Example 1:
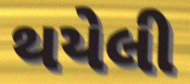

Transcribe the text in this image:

થયેલી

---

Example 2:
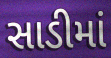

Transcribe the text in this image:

સાડીમાં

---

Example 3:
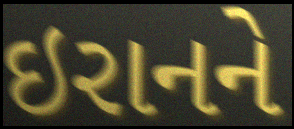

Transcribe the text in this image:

ઇરાનને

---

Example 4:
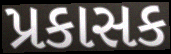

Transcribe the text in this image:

પ્રકાસક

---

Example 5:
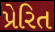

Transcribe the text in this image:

પ્રેરિત